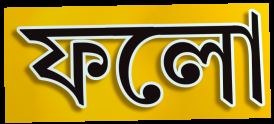
ফলো